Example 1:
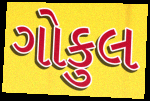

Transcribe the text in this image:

ગોકુલ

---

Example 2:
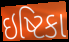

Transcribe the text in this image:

ઇષ્ટિકા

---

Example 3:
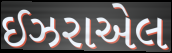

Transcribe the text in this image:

ઈઝરાએલ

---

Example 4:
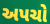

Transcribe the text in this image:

અપચો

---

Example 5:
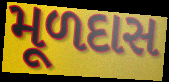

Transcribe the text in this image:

મૂળદાસ